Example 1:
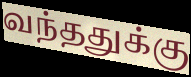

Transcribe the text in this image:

வந்ததுக்கு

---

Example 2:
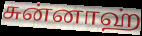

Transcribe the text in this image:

சுன்னாஹ்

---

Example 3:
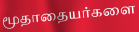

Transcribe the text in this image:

மூதாதையர்களை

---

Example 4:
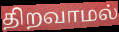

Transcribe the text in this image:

திறவாமல்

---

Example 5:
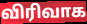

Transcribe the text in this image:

விரிவாக